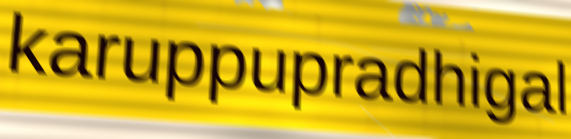
karuppupradhigal